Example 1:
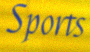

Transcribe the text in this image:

Sports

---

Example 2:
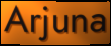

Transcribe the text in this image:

Arjuna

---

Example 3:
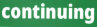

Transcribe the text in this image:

continuing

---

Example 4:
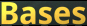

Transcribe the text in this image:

Bases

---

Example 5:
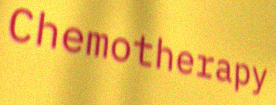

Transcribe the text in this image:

Chemotherapy